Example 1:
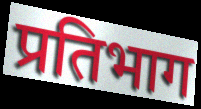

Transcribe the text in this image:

प्रतिभाग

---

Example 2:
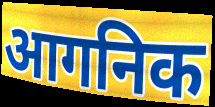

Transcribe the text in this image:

आगनिक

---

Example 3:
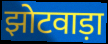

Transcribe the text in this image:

झोटवाड़ा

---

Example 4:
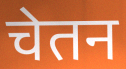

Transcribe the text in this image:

चेतन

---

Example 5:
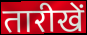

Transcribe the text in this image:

तारीखें